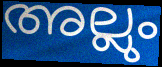
അല്ലും